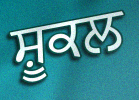
ਸ਼ੂਕਲ